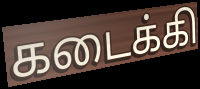
கடைக்கி